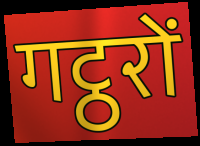
गट्ठरों